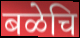
बळेचि